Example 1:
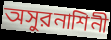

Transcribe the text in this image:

অসুরনাশিনী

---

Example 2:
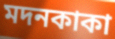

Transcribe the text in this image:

মদনকাকা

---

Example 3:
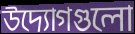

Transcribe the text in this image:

উদ্যোগগুলো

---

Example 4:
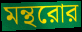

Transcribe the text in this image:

মন্থরোর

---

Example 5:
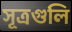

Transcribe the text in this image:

সূত্রগুলি